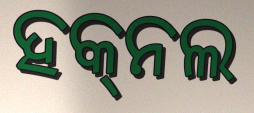
ହକ୍‌ନଲ